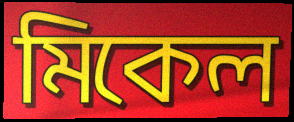
মিকেল